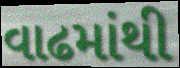
વાઢમાંથી